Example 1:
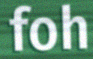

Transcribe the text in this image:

foh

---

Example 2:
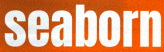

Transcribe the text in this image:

seaborn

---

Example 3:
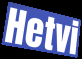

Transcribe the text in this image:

Hetvi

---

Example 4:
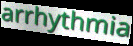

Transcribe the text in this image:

arrhythmia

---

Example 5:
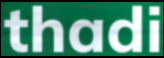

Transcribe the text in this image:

thadi